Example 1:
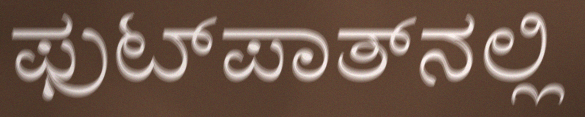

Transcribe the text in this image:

ಫುಟ್‌ಪಾತ್‌ನಲ್ಲಿ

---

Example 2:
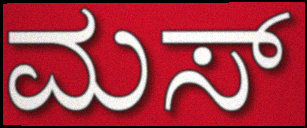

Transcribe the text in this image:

ಮಸ್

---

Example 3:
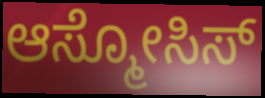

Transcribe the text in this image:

ಆಸ್ಮೋಸಿಸ್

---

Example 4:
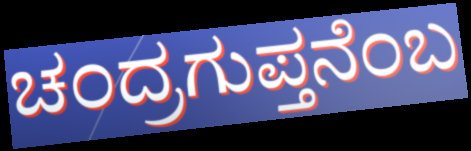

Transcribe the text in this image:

ಚಂದ್ರಗುಪ್ತನೆಂಬ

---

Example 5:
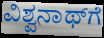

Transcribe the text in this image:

ವಿಶ್ವನಾಥ್‌ಗೆ